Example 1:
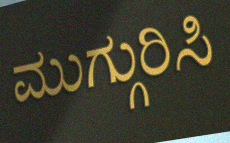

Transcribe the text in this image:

ಮುಗ್ಗುರಿಸಿ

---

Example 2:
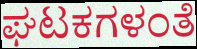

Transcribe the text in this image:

ಘಟಕಗಳಂತೆ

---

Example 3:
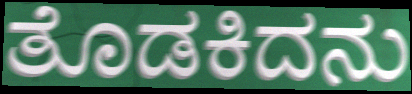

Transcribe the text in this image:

ತೊಡಕಿದನು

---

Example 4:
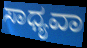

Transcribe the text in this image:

ಸಾಧ್ಯವಾ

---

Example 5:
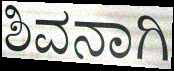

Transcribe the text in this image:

ಶಿವನಾಗಿ